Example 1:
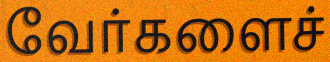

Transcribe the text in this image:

வேர்களைச்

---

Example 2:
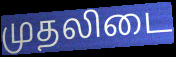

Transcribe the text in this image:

முதலிடை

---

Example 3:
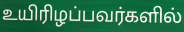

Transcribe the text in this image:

உயிரிழப்பவர்களில்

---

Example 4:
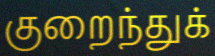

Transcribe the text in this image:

குறைந்துக்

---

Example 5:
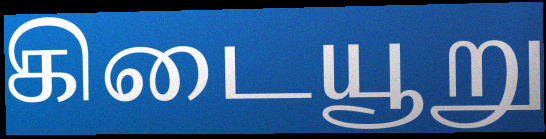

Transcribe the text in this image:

கிடையூறு